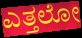
ಎತ್ತಲೋ